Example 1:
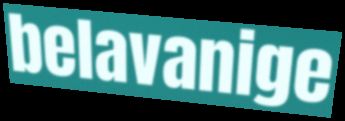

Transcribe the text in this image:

belavanige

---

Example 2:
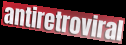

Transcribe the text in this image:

antiretroviral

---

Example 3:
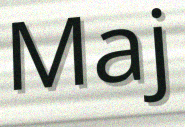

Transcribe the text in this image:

Maj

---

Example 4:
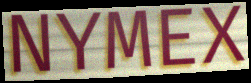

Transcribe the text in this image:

NYMEX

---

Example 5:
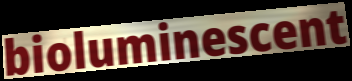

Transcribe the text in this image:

bioluminescent